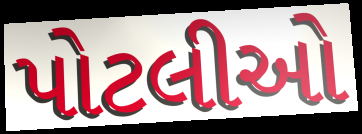
પોટલીઓ